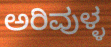
ಅರಿವುಳ್ಳ